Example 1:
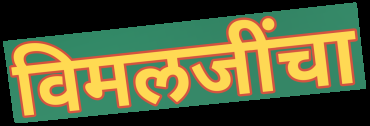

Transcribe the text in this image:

विमलजींचा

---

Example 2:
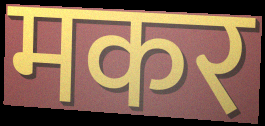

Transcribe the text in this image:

मकर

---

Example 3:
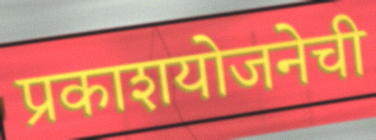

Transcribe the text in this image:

प्रकाशयोजनेची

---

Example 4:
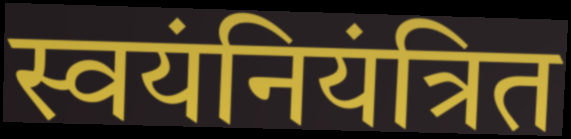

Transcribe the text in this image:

स्वयंनियंत्रित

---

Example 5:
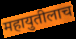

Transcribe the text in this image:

महायुतीलाच